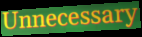
Unnecessary